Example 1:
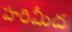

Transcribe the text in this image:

హరిమీద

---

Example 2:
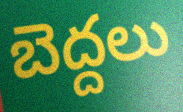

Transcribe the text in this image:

బెద్దలు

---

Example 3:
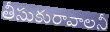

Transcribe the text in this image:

తీసుకురావాలనీ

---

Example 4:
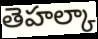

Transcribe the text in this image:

తెహల్కా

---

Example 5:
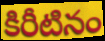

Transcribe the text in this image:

కిరీటినం